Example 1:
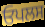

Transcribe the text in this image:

ਓਪਲਸ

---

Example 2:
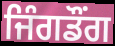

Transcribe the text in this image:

ਜਿੰਗਡੌਂਗ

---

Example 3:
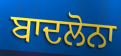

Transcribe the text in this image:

ਬਾਦਲੋਨਾ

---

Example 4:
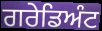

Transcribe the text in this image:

ਗਰੇਡਿਅੰਟ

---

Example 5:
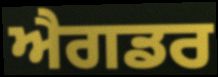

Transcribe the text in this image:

ਐਗਡਰ